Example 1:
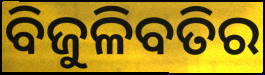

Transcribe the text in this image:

ବିଜୁଳିବତିର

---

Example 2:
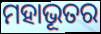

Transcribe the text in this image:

ମହାଭୂତର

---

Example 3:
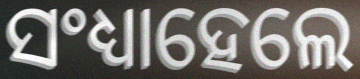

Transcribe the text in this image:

ସଂଧ୍ୟାହେଲେ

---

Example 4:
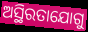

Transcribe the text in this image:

ଅସ୍ଥିରତାଯୋଗୁ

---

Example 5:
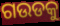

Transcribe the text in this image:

ଗଉଡକୁ